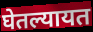
घेतल्यायत